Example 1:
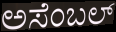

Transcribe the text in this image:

ಅಸೆಂಬಲ್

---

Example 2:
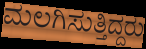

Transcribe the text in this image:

ಮಲಗಿಸುತ್ತಿದ್ದರು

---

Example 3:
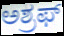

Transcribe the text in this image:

ಅಶ್ರಫ್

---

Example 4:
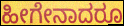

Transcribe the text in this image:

ಹೀಗೇನಾದರೂ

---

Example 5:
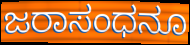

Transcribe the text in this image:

ಜರಾಸಂಧನೂ